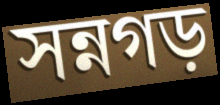
সন্নগড়